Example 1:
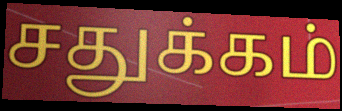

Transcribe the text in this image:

சதுக்கம்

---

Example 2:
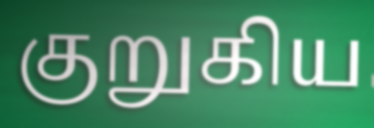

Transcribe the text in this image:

குறுகிய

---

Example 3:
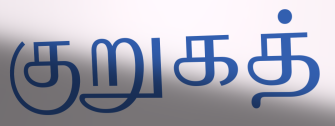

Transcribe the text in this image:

குறுகத்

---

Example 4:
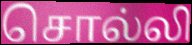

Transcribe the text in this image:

சொல்லி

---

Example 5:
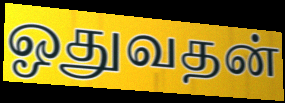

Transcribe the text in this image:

ஓதுவதன்